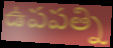
ఉపపత్ని